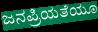
ಜನಪ್ರಿಯತೆಯೂ